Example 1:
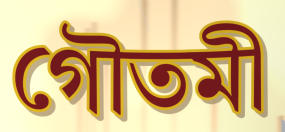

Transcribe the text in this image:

গৌতমী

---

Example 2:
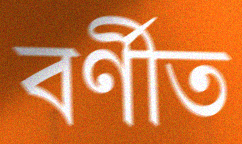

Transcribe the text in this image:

বর্ণীত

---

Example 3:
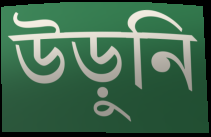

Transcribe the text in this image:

উড়ুনি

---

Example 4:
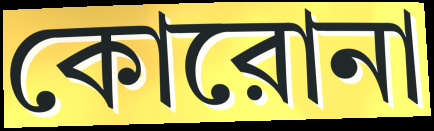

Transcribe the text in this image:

কোরোনা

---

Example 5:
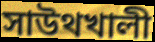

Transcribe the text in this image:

সাউথখালী